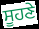
ਸੂਹਣੇ